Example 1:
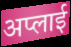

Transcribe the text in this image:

अप्‍लाई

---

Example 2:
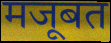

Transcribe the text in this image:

मजूबत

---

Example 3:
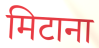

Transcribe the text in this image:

मिटाना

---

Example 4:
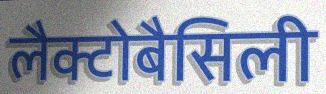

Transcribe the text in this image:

लैक्टोबैसिली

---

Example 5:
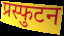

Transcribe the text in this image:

प्रस्‍फुटन